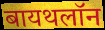
बायथलॉन